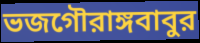
ভজগৌরাঙ্গবাবুর